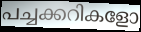
പച്ചക്കറികളോ